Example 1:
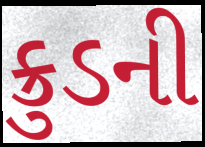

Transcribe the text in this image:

ક્રુડની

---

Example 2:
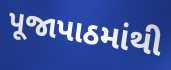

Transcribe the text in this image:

પૂજાપાઠમાંથી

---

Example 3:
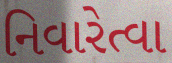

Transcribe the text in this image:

નિવારેત્વા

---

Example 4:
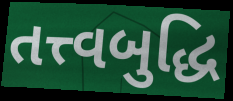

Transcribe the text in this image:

તત્ત્વબુદ્ધિ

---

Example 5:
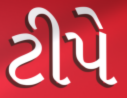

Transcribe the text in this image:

ટીપે